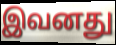
இவனது